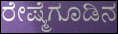
ರೇಷ್ಮೆಗೂಡಿನ